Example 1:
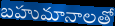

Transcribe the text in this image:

బహుమానాలతో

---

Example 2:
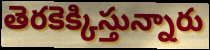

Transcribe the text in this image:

తెరకెక్కిస్తున్నారు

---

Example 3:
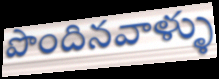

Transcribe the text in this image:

పొందినవాళ్ళు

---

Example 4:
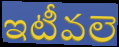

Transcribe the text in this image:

ఇటీవలె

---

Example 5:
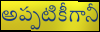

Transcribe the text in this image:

అప్పటికీగానీ